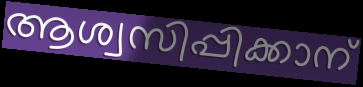
ആശ്വസിപ്പിക്കാന്